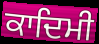
ਕਾਦਿਮੀ